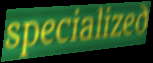
specialized